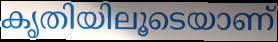
കൃതിയിലൂടെയാണ്